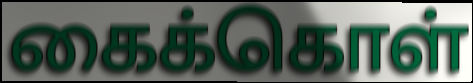
கைக்கொள்